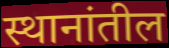
स्थानांतील